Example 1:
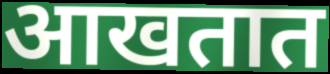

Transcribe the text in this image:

आखतात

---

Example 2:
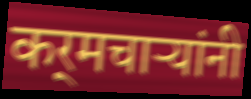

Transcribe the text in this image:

कर्मचाऱ्यांनी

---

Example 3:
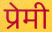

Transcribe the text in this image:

प्रेमी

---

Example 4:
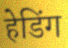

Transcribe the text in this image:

हेडिंग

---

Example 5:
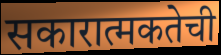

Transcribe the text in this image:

सकारात्मकतेची